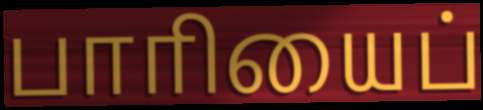
பாரியைப்